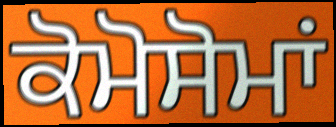
ਕੋਮੋਸੋਮਾਂ